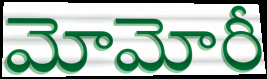
మోమోరీ